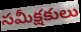
సమీక్షకులు